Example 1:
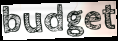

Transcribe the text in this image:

budget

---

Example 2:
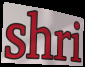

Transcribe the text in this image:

shri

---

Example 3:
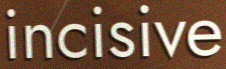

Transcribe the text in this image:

incisive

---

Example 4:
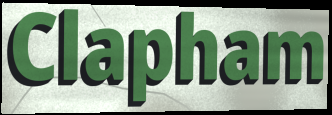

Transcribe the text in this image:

Clapham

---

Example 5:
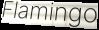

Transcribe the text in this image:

Flamingo